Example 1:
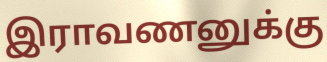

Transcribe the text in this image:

இராவணனுக்கு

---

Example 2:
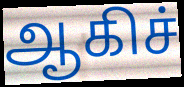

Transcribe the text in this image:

ஆகிச்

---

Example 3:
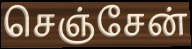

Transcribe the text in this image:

செஞ்சேன்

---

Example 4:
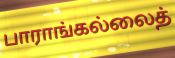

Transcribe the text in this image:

பாராங்கல்லைத்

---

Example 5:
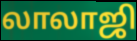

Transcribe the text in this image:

லாலாஜி